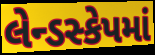
લેન્ડસ્કેપમાં